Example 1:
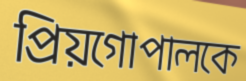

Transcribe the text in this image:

প্রিয়গোপালকে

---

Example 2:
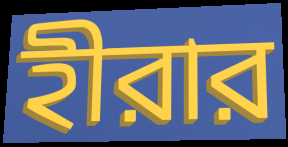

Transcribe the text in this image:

হীরার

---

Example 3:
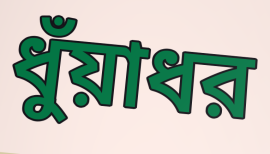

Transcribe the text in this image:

ধুঁয়াধর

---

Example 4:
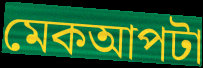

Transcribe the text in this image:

মেকআপটা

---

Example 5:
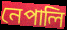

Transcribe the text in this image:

নেপালি